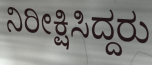
ನಿರೀಕ್ಷಿಸಿದ್ದರು